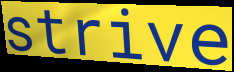
strive